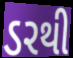
ડરથી